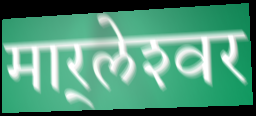
मार्लेश्वर